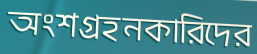
অংশগ্রহনকারিদের